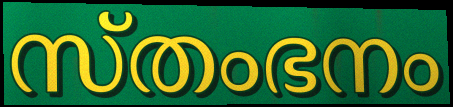
സ്തംഭനം